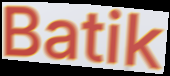
Batik